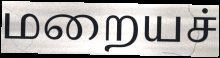
மறையச்